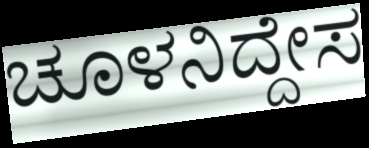
ಚೂಳನಿದ್ದೇಸ